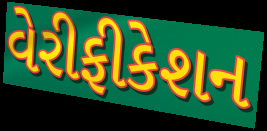
વેરીફીકેશન